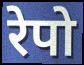
रेपो